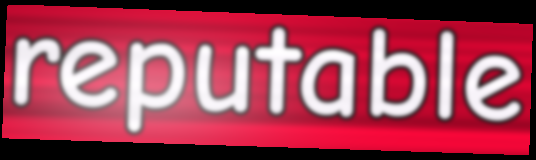
reputable